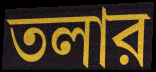
তলার